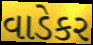
વાડેકર